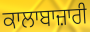
ਕਾਲਾਬਾਜ਼ਾਰੀ